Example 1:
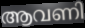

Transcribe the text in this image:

ആവണി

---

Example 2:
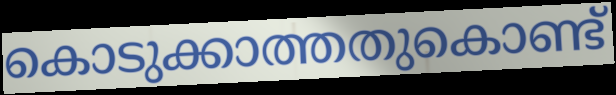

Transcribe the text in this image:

കൊടുക്കാത്തതുകൊണ്ട്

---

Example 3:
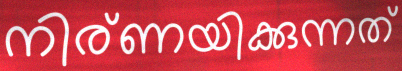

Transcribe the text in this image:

നിര്ണയിക്കുന്നത്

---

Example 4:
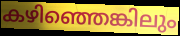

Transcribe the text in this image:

കഴിഞ്ഞെങ്കിലും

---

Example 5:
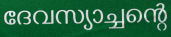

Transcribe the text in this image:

ദേവസ്യാച്ചന്റെ